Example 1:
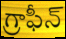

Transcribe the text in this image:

గ్రాఫీన్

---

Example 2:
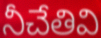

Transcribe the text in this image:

నీచేతివి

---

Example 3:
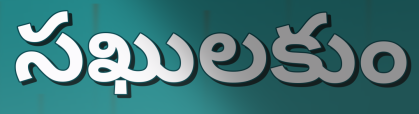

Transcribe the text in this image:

సఖులకుం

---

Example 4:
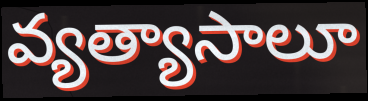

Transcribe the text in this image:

వ్యత్యాసాలూ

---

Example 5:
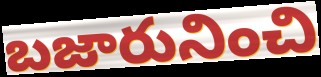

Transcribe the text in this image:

బజారునించి